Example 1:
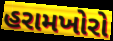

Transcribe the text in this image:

હરામખોરો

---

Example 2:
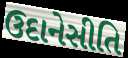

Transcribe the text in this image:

ઉદાનેસીતિ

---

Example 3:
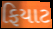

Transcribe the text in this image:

ફિયાટ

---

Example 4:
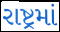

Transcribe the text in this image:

રાષ્ટ્રમાં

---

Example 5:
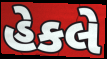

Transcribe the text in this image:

હેકલે